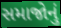
સમાજોનું